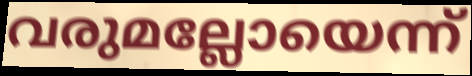
വരുമല്ലോയെന്ന്